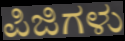
ಪಿಜಿಗಳು